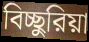
বিচ্ছুরিয়া